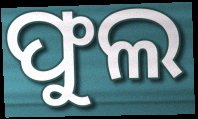
ଫୁଲ